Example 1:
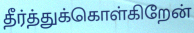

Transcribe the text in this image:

தீர்த்துக்கொள்கிறேன்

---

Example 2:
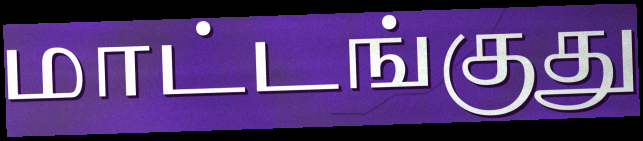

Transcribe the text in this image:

மாட்டங்குது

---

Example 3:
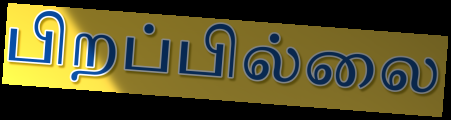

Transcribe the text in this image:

பிறப்பில்லை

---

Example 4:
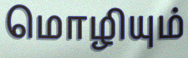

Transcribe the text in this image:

மொழியும்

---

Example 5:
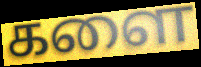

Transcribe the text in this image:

களை